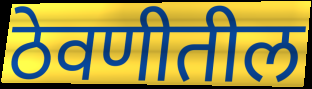
ठेवणीतील